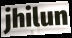
jhilun